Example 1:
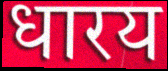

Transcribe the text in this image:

धारय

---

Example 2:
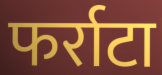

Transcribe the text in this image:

फर्राटा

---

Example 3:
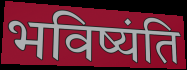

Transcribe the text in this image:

भविष्यंति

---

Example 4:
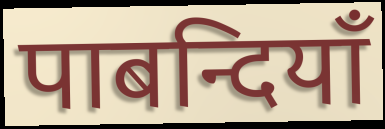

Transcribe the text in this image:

पाबन्दियाँ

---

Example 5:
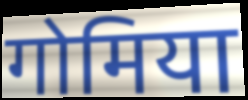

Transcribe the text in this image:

गोमिया